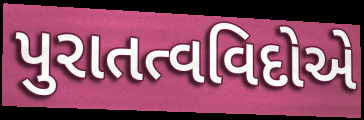
પુરાતત્વવિદોએ